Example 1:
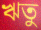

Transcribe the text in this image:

ঋতু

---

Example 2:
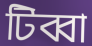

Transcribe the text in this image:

টিব্বা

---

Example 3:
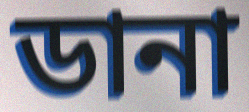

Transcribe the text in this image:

ডানা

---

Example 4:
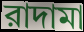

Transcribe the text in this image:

রাদামা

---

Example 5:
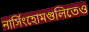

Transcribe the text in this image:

নার্সিংহোমগুলিতেও